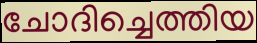
ചോദിച്ചെത്തിയ